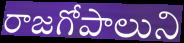
రాజగోపాలుని